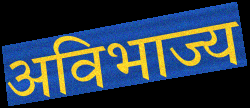
अविभाज्य